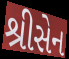
શ્રીસેન